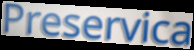
Preservica